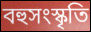
বহুসংস্কৃতি